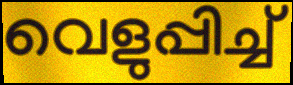
വെളുപ്പിച്ച്